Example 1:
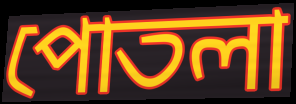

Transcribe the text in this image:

পোতলা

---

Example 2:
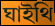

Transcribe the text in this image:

ঘাইথি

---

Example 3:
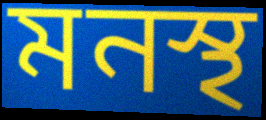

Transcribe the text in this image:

মনস্থ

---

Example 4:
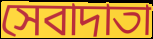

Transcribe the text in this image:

সেবাদাতা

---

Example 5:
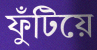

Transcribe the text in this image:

ফুঁটিয়ে